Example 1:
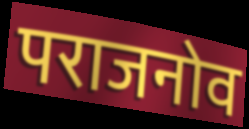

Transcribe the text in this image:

पराजनोव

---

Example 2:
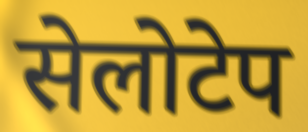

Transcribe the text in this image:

सेलोटेप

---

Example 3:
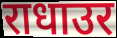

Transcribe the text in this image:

राधाउर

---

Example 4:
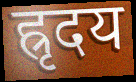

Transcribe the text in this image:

ह्रृदय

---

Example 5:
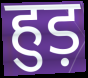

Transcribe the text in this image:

हुड़